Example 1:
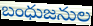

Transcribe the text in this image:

బంధుజనుల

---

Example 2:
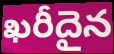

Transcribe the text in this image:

ఖరీదైన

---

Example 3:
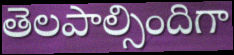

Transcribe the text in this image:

తెలపాల్సిందిగా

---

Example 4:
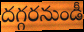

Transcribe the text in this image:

దగ్గరనుండీ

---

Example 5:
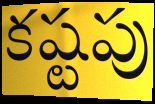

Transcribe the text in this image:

కష్టపు